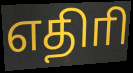
எதிரி